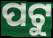
ପଟୁ